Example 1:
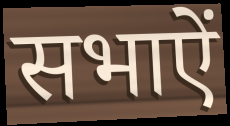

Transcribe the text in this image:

सभाऐं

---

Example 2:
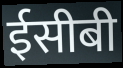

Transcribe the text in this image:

ईसीबी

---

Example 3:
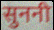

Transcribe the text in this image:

सुननी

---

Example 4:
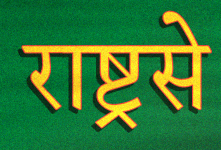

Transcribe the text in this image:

राष्ट्रसे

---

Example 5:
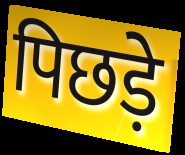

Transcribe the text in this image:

पिछड़े